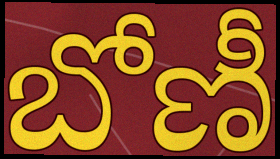
బోణీ